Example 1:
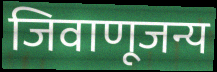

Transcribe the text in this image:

जिवाणूजन्य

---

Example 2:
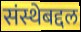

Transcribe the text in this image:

संस्थेबद्दल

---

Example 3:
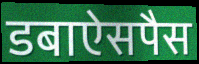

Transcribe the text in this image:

डबाऐसपैस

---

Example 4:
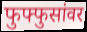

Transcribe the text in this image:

फुफ्फुसांवर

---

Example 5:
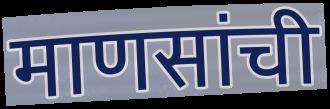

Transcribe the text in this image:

माणसांची